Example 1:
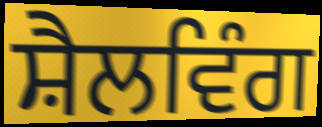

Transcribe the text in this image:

ਸ਼ੈਲਵਿੰਗ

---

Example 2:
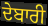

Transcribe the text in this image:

ਦੇਬਾਰੀ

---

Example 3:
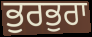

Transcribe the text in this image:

ਭੁਰਭੁਰਾ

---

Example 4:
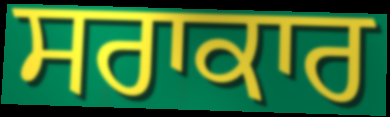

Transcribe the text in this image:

ਸਰਾਕਾਰ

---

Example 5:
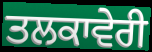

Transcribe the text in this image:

ਤਲਕਾਵੇਰੀ